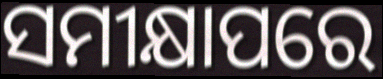
ସମୀକ୍ଷାପରେ